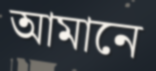
আমানে